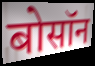
बोसॉन